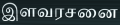
இளவரசனை